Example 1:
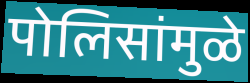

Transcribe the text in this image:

पोलिसांमुळे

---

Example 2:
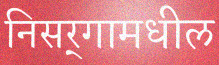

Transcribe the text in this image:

निसर्गामधील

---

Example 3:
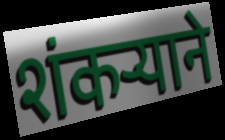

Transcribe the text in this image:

शंकर्‍याने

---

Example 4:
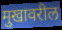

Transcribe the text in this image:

मुखावरील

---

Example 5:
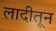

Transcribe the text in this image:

लादीतून